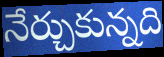
నేర్చుకున్నది